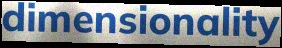
dimensionality